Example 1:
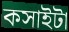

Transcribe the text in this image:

কসাইটা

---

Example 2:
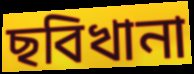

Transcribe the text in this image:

ছবিখানা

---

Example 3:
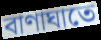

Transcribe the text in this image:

বাণাঘাতে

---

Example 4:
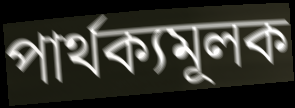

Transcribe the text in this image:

পার্থক্যমূলক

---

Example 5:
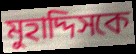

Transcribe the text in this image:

মুহাদ্দিসকে